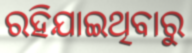
ରହିଯାଇଥିବାରୁ